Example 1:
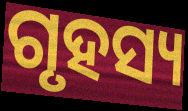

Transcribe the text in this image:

ଗୃହସ୍ୟ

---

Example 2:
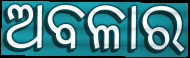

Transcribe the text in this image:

ଅବଳାର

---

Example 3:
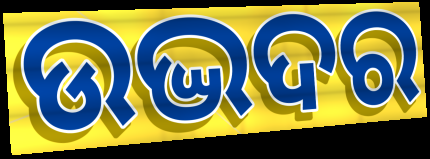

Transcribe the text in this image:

ଉଦ୍ଭଦର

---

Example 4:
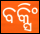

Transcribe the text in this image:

ବକ୍ସିଂ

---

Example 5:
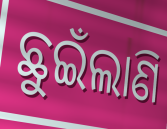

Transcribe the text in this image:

ଛୁଇଁଲାଣି